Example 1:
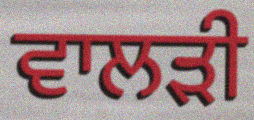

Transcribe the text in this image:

ਵਾਲੜੀ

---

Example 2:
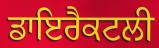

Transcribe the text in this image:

ਡਾਇਰੈਕਟਲੀ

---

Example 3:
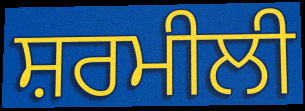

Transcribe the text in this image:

ਸ਼ਰਮੀਲੀ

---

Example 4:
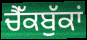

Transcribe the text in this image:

ਚੈੱਕਬੁੱਕਾਂ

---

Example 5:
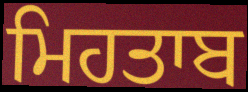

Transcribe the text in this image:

ਮਿਹਤਾਬ